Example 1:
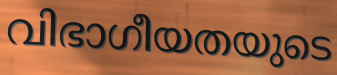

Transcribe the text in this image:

വിഭാഗീയതയുടെ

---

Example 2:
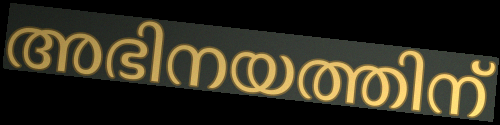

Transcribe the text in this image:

അഭിനയത്തിന്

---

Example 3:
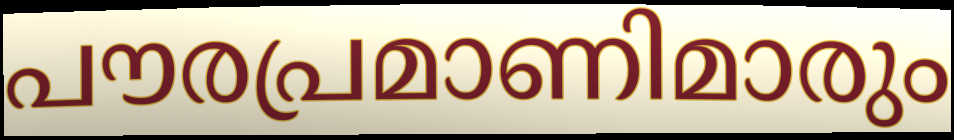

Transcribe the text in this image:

പൗരപ്രമാണിമാരും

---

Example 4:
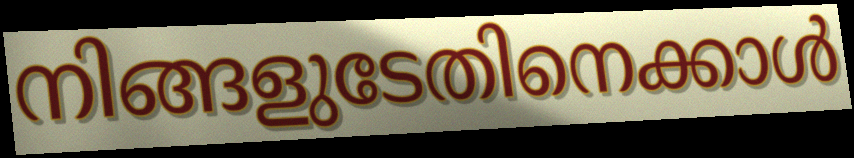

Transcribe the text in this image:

നിങ്ങളുടേതിനെക്കാൾ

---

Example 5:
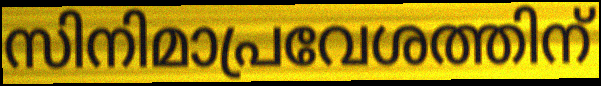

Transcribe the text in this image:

സിനിമാപ്രവേശത്തിന്